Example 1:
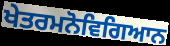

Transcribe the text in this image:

ਖੇਤਰਮਨੋਵਿਗਿਆਨ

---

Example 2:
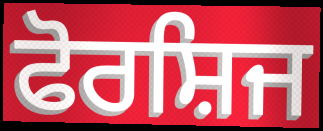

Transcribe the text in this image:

ਫੋਰਸ਼ਿਜ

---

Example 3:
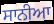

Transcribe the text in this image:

ਸਾਨੀਆ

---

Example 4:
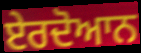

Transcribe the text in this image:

ਏਰਦੋਆਨ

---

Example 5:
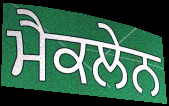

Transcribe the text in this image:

ਮੈਕਲੇਨ